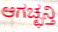
ಆಗಚ್ಛನ್ತಿ